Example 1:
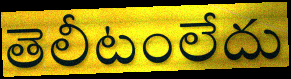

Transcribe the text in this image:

తెలీటంలేదు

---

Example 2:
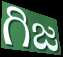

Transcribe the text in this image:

గిజ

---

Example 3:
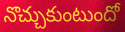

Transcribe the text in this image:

నొచ్చుకుంటుందో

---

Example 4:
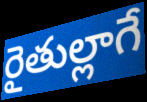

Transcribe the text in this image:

రైతుల్లాగే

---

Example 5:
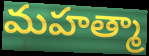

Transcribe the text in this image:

మహత్మా